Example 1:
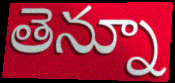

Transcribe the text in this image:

తెన్నూ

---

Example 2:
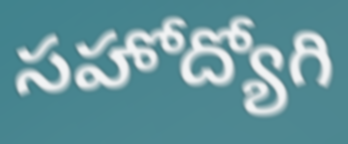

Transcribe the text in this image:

సహోద్యోగి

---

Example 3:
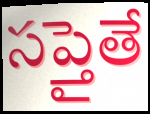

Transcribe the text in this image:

సప్తైతే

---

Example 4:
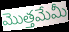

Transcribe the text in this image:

మొత్తమేమీ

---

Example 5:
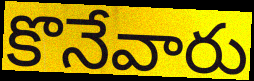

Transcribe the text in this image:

కొనేవారు